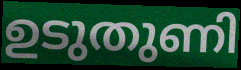
ഉടുതുണി